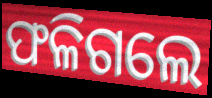
ଫଳିଗଲେ